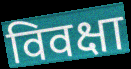
विवक्षा